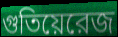
গুতিয়েরেজ